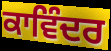
ਕਾਵਿੰਦਰ